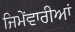
ਜਿਮੇਂਵਾਰੀਆਂ